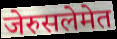
जेरुसलेमेत